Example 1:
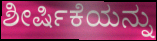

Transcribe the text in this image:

ಶೀರ್ಷಿಕೆಯನ್ನು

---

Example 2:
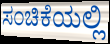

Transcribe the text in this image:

ಸಂಚಿಕೆಯಲ್ಲಿ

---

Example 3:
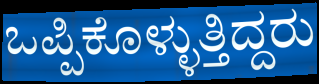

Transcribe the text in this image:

ಒಪ್ಪಿಕೊಳ್ಳುತ್ತಿದ್ದರು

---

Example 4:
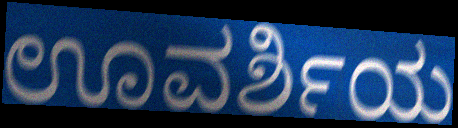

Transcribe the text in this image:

ಊವರ್ಶಿಯ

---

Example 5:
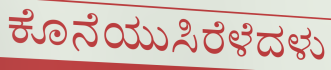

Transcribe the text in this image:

ಕೊನೆಯುಸಿರೆಳೆದಳು